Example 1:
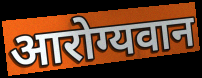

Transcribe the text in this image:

आरोग्यवान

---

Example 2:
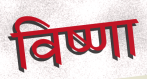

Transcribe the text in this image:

विष्णा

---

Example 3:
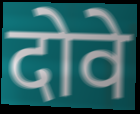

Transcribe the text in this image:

दोवे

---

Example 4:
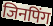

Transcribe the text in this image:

जिनपिंग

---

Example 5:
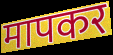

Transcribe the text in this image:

मापकर